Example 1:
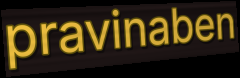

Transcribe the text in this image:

pravinaben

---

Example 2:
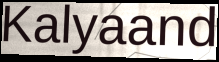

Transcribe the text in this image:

Kalyaand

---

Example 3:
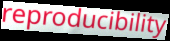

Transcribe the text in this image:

reproducibility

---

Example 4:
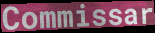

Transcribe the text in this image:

Commissar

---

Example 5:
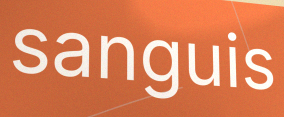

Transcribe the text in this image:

sanguis